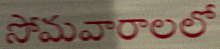
సోమవారాలలో